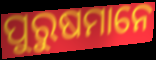
ପୁରୁଷମାନେ